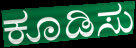
ಕೂಡಿಸು